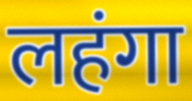
लहंगा